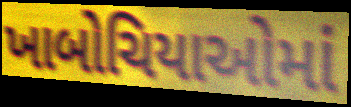
ખાબોચિયાઓમાં